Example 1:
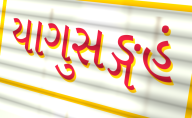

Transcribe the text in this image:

યાગુસઙ્ગહં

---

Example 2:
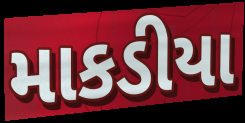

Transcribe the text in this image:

માકડીયા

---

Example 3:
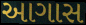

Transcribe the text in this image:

આગાસ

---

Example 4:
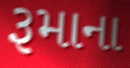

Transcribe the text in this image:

રૂમાના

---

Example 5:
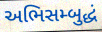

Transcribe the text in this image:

અભિસમ્બુદ્ધં